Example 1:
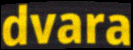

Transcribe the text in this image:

dvara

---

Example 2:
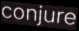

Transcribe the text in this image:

conjure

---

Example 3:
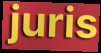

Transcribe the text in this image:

juris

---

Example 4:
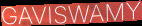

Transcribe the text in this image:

GAVISWAMY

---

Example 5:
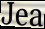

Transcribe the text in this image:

Jea